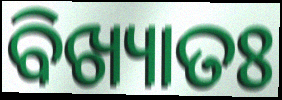
ବିଖ୍ୟାତଃ